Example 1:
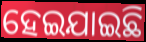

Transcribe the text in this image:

ହେଇଯାଇଛି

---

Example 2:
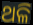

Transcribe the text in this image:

ଥଳି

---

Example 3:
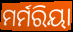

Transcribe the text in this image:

ମର୍ମରିୟା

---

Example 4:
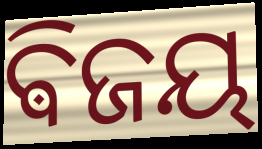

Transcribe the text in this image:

ଵିଜୟ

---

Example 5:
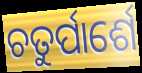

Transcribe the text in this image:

ଚତୁର୍ପାର୍ଶେ